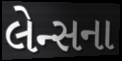
લેન્સના